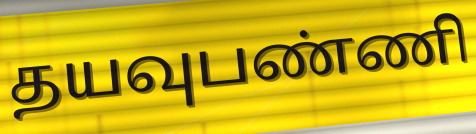
தயவுபண்ணி